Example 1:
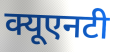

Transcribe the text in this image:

क्यूएनटी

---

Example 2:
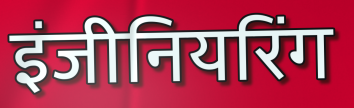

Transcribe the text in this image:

इंजीनियरिंग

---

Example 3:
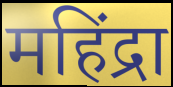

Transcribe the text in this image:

महिंद्रा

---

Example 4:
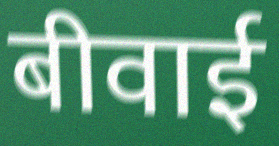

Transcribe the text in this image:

बीवाई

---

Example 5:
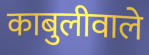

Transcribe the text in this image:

काबुलीवाले